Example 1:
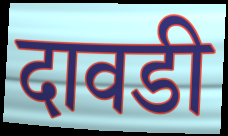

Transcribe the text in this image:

दावडी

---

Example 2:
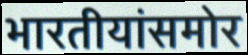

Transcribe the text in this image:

भारतीयांसमोर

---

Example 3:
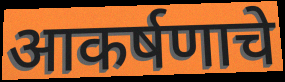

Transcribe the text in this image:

आकर्षणाचे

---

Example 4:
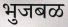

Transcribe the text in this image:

भुजबळ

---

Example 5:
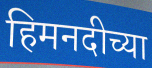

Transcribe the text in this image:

हिमनदीच्या